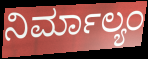
ನಿರ್ಮಾಲ್ಯಂ